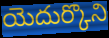
యెదుర్కొని